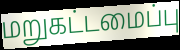
மறுகட்டமைப்பு